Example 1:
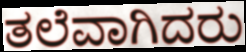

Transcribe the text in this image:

ತಲೆವಾಗಿದರು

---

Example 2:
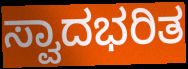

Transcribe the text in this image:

ಸ್ವಾದಭರಿತ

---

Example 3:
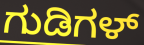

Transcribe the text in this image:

ಗುಡಿಗಳ್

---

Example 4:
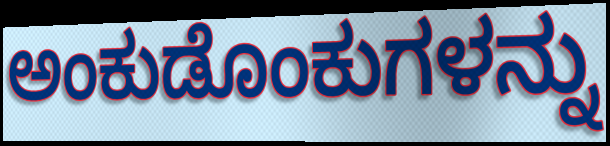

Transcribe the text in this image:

ಅಂಕುಡೊಂಕುಗಳನ್ನು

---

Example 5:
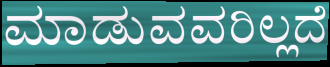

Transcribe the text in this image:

ಮಾಡುವವರಿಲ್ಲದೆ